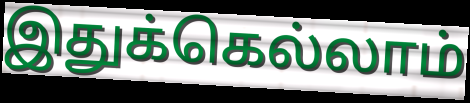
இதுக்கெல்லாம்